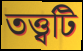
তত্ত্বটি